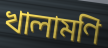
খালামণি